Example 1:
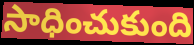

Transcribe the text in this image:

సాధించుకుంది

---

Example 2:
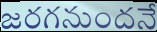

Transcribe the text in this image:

జరగనుందనే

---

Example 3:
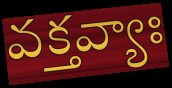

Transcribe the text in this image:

వక్తవ్యాః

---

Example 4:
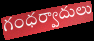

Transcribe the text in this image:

గంధర్వాదులు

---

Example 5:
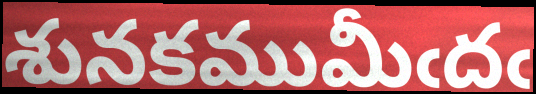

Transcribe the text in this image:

శునకముమీఁదఁ